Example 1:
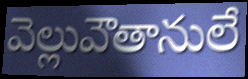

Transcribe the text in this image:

వెల్లువౌతానులే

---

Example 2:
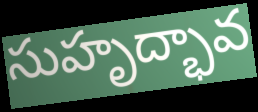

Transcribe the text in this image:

సుహృద్భావ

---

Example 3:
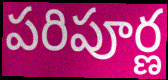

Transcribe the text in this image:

పరిపూర్ణ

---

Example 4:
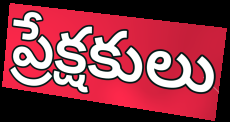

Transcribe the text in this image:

ప్రేక్షకులు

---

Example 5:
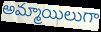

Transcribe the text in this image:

అమ్మాయిలుగా